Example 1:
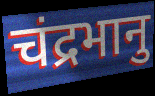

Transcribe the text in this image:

चंद्रभानु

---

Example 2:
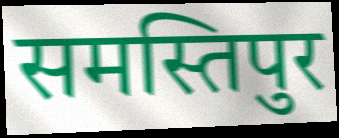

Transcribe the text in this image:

समस्तिपुर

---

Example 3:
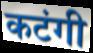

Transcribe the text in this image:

कटंगी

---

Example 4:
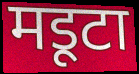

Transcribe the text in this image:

मडूटा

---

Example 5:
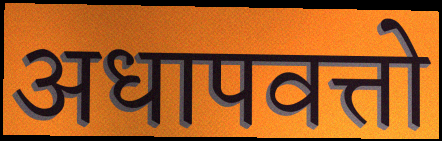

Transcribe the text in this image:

अधापवत्तो